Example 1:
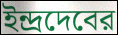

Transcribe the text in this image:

ইন্দ্রদেবের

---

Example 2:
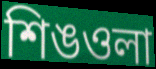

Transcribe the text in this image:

শিঙওলা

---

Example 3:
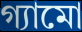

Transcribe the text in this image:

গ্যামো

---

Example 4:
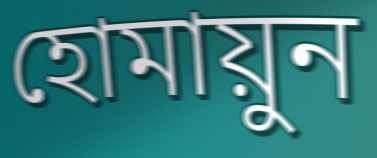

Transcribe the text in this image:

হোমায়ুন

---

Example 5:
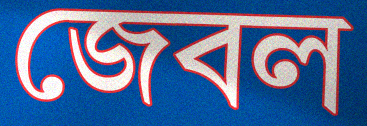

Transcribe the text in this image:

জেবল